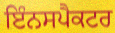
ਇੰਨਸਪੈਕਟਰ